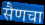
सैणचा